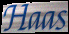
Haas